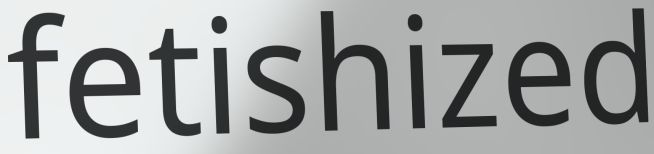
fetishized